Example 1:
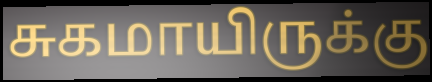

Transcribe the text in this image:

சுகமாயிருக்கு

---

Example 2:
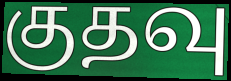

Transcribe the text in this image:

குதவு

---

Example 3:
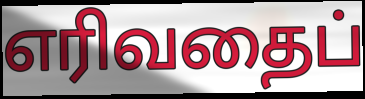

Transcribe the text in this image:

எரிவதைப்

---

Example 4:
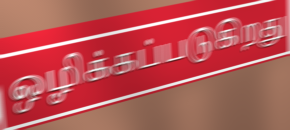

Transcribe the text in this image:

ஒழிக்கப்படுகிறது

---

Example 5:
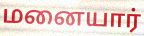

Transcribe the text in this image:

மனையார்